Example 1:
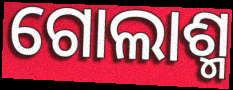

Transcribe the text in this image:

ଗୋଲାଶ୍ମ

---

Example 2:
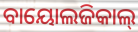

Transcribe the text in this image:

ବାୟୋଲଜିକାଲ୍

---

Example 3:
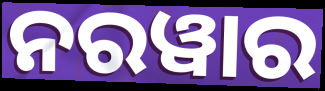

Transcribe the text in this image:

ନରୱାର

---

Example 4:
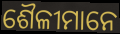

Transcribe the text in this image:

ଶୈଳୀମାନେ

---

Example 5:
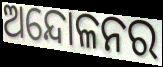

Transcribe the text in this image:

ଅନ୍ଦୋଳନର